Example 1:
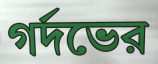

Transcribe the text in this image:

গর্দভের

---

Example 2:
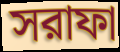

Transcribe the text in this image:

সরাফা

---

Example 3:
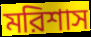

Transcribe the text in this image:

মরিশাস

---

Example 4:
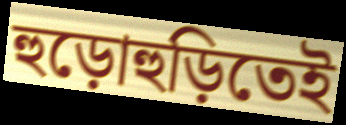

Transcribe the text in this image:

হুড়োহুড়িতেই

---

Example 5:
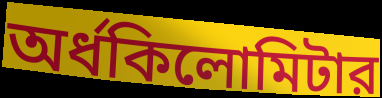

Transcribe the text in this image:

অর্ধকিলোমিটার